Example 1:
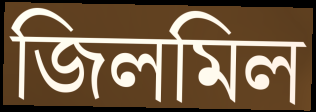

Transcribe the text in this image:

জিলমিল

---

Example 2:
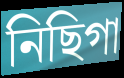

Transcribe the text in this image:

নিছিগা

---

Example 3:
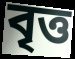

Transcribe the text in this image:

বৃত্ত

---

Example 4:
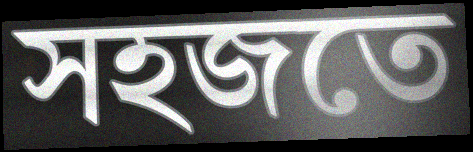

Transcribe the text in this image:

সহজতে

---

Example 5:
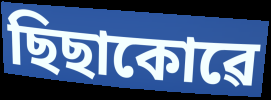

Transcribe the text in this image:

ছিছাকোৱে